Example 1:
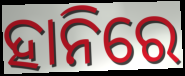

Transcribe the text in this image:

ହାନିରେ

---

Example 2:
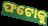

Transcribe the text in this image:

ଫଟୋକୁ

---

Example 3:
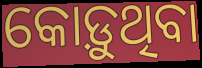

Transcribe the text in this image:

କୋଡ଼ୁଥିବା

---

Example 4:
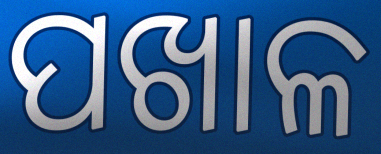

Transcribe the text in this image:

ପଖାଳ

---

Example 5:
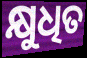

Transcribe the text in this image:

କ୍ଷୁଧିତ